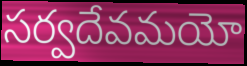
సర్వదేవమయో